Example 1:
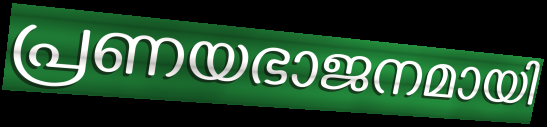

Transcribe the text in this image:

പ്രണയഭാജനമായി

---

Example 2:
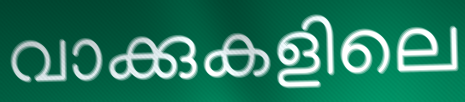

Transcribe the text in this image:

വാക്കുകളിലെ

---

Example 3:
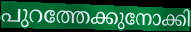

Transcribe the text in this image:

പുറത്തേക്കുനോക്കി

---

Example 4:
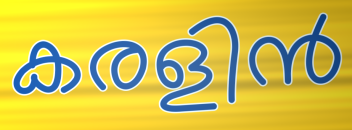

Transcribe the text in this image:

കരളിൻ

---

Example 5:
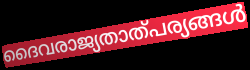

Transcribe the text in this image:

ദൈവരാജ്യതാത്പര്യങ്ങൾ